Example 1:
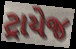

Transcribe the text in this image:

ટ્રાયેજ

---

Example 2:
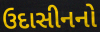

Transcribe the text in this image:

ઉદાસીનનો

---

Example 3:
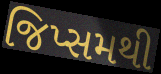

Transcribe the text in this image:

જિપ્સમથી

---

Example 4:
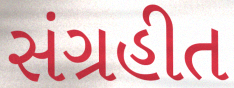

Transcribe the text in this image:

સંગ્રહીત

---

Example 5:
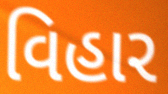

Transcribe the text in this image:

વિહાર